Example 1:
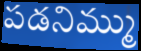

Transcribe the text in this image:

పడనిమ్ము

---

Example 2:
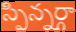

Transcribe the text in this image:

స్పిన్నర్గా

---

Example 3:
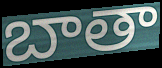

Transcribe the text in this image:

బాతా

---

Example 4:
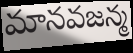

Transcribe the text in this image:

మానవజన్మ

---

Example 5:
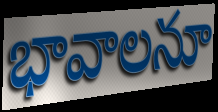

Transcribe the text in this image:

భావాలనూ